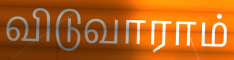
விடுவாராம்